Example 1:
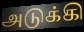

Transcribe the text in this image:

அடுக்கி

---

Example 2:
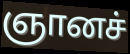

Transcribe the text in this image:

ஞானச்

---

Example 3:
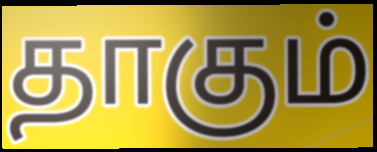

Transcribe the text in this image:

தாகும்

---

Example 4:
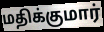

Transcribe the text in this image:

மதிக்குமார்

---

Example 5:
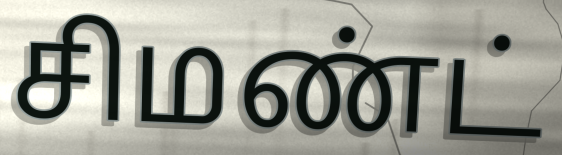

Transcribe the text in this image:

சிமண்ட்